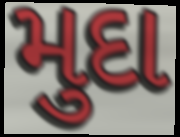
મુદા